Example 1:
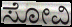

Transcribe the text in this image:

ಸೋವಿ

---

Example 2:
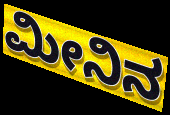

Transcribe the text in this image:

ಮೀನಿನ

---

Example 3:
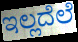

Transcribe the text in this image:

ಇಲ್ಲದೆಲೆ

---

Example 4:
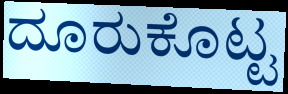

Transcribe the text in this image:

ದೂರುಕೊಟ್ಟ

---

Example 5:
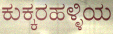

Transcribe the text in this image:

ಕುಕ್ಕರಹಳ್ಳಿಯ